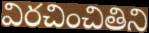
విరచించితిని